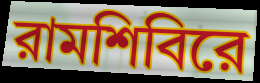
রামশিবিরে